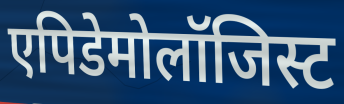
एपिडेमोलॉजिस्ट